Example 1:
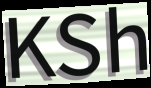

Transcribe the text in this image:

KSh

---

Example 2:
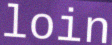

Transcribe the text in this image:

loin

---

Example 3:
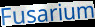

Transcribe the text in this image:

Fusarium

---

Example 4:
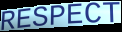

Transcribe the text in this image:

RESPECT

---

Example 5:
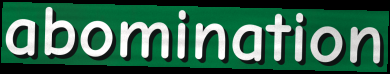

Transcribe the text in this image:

abomination